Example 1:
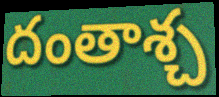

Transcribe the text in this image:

దంతాశ్చ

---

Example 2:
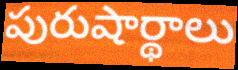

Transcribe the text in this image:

పురుషార్థాలు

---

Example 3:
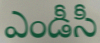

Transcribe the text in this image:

ఎండీసీ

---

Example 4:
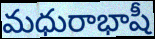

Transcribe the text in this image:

మధురాభాషీ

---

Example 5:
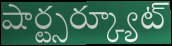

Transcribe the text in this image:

షార్ట్సర్క్యూట్